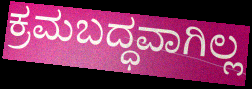
ಕ್ರಮಬದ್ಧವಾಗಿಲ್ಲ